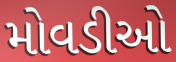
મોવડીઓ